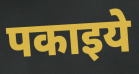
पकाइये